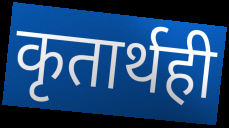
कृतार्थही